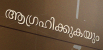
ആഗ്രഹിക്കുകയും